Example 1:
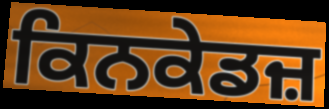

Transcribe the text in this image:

ਕਿਨਕੇਡਜ਼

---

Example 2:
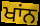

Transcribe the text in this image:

ਖਾਂਨ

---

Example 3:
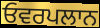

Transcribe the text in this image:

ਓਵਰਪਲਾਨ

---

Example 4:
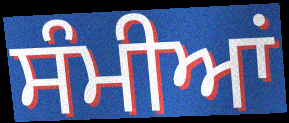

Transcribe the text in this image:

ਸੰਮੀਆਂ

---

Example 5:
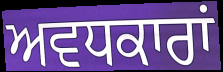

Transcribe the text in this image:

ਅਵਧਕਾਰਾਂ